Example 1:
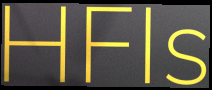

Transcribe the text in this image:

HFIs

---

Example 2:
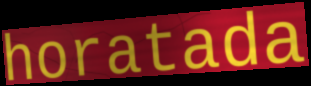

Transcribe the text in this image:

horatada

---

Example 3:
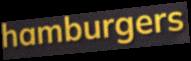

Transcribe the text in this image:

hamburgers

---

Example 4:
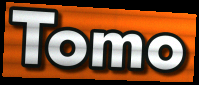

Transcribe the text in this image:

Tomo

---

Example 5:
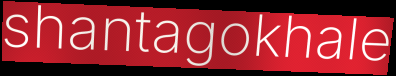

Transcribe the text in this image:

shantagokhale